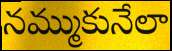
నమ్ముకునేలా